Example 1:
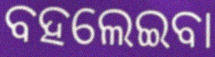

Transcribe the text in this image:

ବହଲେଇବା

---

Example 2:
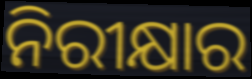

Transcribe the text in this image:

ନିରୀକ୍ଷାର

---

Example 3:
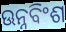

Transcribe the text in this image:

ଊନ୍ନବିଂଶ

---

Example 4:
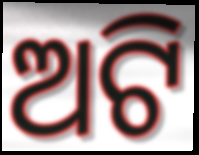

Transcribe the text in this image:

ଅଟି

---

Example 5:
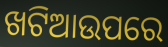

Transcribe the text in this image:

ଖଟିଆଉପରେ